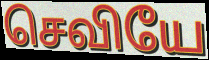
செவியே